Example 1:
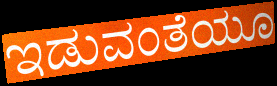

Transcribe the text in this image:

ಇಡುವಂತೆಯೂ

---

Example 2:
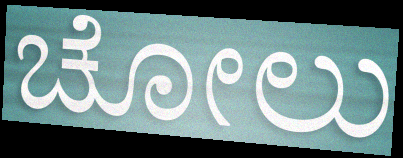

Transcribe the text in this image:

ಚೋಲು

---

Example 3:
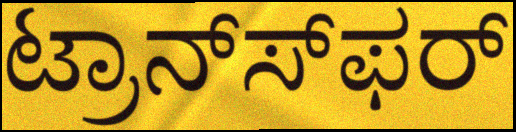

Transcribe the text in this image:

ಟ್ರಾನ್ಸ್‍ಫರ್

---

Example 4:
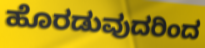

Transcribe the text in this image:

ಹೊರಡುವುದರಿಂದ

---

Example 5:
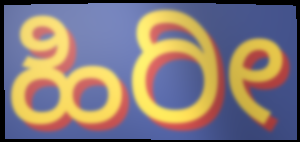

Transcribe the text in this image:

ಹಿರೀ